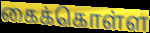
கைக்கொள்ள